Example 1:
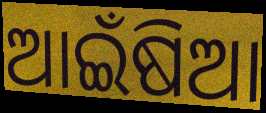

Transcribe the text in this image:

ଆଇଁଷିଆ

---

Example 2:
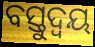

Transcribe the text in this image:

ବସ୍ତୁଦ୍ୱୟ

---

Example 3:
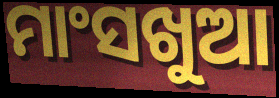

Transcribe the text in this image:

ମାଂସଖୁଆ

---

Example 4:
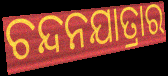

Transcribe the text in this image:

ଚନ୍ଦନଯାତ୍ରାର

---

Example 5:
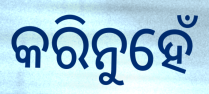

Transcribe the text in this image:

କରିନୁହେଁ